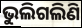
ଭୁଲିଗଲିଣି